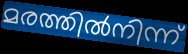
മരത്തിൽനിന്ന്